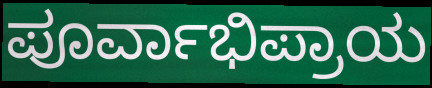
ಪೂರ್ವಾಭಿಪ್ರಾಯ